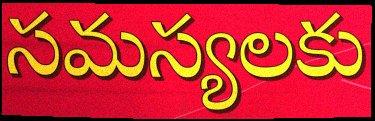
సమస్యలకు